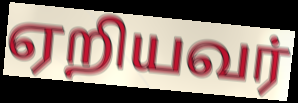
ஏறியவர்